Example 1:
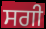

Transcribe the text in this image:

ਸਗੀ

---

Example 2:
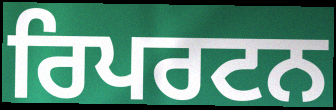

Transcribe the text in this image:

ਰਿਪਰਟਨ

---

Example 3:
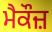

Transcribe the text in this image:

ਮੈਕੌਜ਼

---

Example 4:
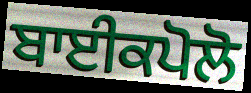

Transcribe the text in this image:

ਬਾਈਕਪੋਲੋ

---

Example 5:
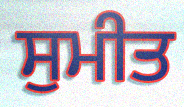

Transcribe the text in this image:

ਸੁਮੀਤ